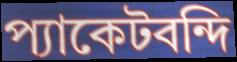
প্যাকেটবন্দি